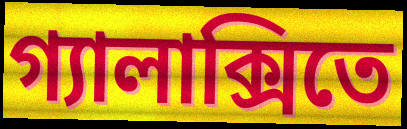
গ্যালাক্সিতে